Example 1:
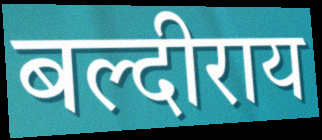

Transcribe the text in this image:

बल्दीराय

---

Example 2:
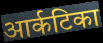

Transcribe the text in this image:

आर्कटिका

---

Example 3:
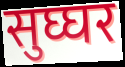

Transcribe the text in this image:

सुघ्घर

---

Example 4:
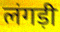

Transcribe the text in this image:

लंगड़ी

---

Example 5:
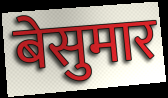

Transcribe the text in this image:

बेसुमार